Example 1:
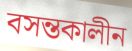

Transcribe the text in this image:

বসন্তকালীন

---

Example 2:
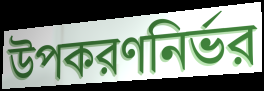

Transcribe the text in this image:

উপকরণনির্ভর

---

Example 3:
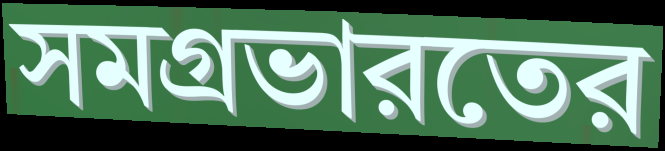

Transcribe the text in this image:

সমগ্রভারতের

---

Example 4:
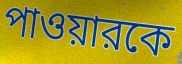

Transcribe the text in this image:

পাওয়ারকে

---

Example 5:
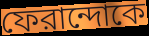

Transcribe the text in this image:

ফেরান্দোকে